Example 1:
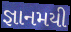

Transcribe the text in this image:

જ્ઞાનમયી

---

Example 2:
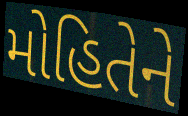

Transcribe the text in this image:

મોહિતેને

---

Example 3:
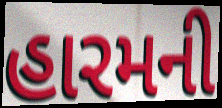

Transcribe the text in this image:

હારમની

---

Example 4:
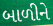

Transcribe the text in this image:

બાળીને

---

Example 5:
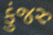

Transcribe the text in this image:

કુંજરુ